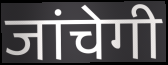
जांचेगी